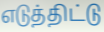
எடுத்திட்டு